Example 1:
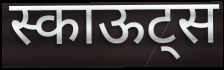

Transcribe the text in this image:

स्काऊट्स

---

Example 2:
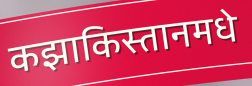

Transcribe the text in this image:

कझाकिस्तानमधे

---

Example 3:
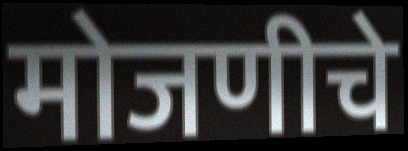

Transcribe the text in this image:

मोजणीचे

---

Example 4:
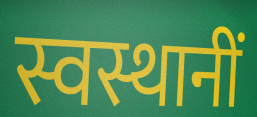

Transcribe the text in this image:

स्वस्थानीं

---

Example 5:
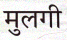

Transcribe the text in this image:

मुलगी